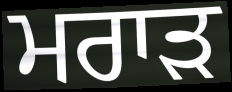
ਮਰਾੜ